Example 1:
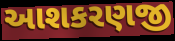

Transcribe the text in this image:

આશકરણજી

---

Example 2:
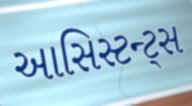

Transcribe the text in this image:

આસિસ્ટન્ટ્સ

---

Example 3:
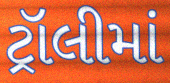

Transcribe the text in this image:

ટ્રૉલીમાં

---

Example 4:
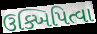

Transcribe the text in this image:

ઉક્ખિપિત્વા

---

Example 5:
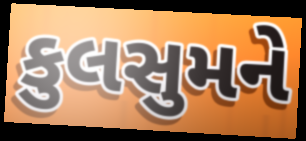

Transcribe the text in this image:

કુલસુમને